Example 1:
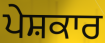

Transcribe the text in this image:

ਪੇਸ਼ਕਾਰ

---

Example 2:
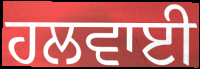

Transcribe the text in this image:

ਹਲਵਾਈ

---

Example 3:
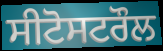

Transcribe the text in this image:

ਸੀਟੋਸਟਰੌਲ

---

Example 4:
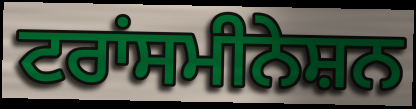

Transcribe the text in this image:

ਟਰਾਂਸਮੀਨੇਸ਼ਨ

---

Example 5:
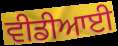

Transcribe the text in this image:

ਵੀਡੀਆਈ